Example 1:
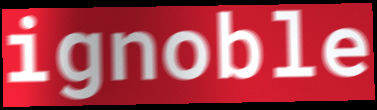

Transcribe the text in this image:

ignoble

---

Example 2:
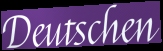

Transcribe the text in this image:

Deutschen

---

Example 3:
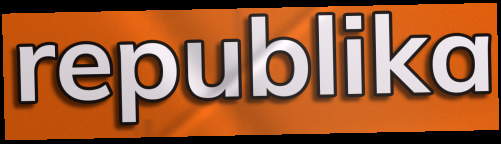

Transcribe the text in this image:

republika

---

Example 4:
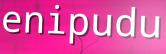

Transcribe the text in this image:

enipudu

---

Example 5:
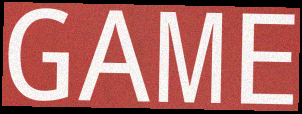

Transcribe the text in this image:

GAME